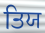
ਤਿਯ